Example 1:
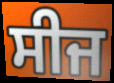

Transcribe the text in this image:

ਸੀਜ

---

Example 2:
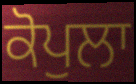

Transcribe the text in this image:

ਕੋਪੁਲਾ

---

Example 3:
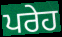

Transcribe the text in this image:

ਪਰੇਹ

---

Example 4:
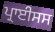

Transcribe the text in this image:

ਪ੍ਰਾਈਸਸ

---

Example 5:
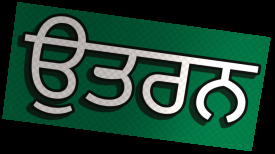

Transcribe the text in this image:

ਉਤਰਨ